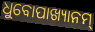
ଧୁବୋପାଖ୍ୟାନମ୍